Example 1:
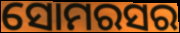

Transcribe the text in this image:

ସୋମରସର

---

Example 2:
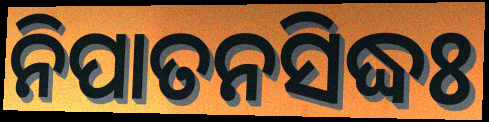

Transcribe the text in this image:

ନିପାତନସିଦ୍ଧଃ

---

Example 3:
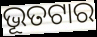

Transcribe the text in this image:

ଭୂତଟାର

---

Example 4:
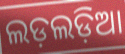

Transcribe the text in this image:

ଲଡ଼ଲଡ଼ିଆ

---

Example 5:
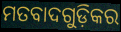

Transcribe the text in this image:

ମତବାଦଗୁଡ଼ିକର